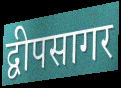
द्वीपसागर